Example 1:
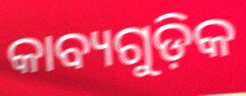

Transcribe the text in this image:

କାବ୍ୟଗୁଡ଼ିକ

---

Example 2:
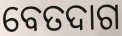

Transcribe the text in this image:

ବେତଦାଗ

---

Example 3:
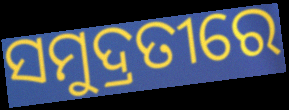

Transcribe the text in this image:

ସମୁଦ୍ରତୀରେ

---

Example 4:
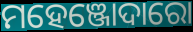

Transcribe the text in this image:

ମହେଞ୍ଜୋଦାରୋ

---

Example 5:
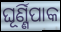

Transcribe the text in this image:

ଘୂର୍ଣ୍ଣିପାକ